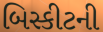
બિસ્કીટની